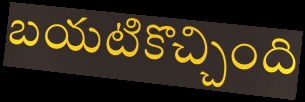
బయటికొచ్చింది